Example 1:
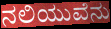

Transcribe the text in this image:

ನಲಿಯುವೆನು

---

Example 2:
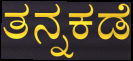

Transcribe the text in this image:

ತನ್ನಕಡೆ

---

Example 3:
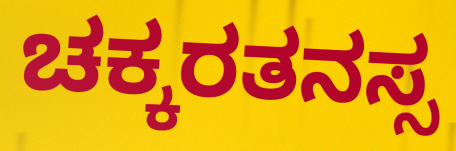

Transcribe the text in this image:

ಚಕ್ಕರತನಸ್ಸ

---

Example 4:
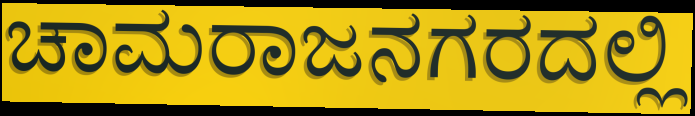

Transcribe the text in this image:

ಚಾಮರಾಜನಗರದಲ್ಲಿ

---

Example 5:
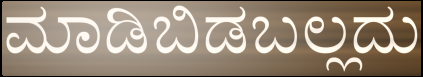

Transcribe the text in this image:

ಮಾಡಿಬಿಡಬಲ್ಲದು